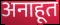
अनाहूत